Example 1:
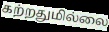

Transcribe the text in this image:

கற்றதுமில்லை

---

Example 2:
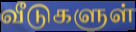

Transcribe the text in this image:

வீடுகளுள்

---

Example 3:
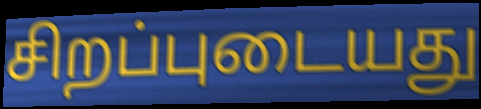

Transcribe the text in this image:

சிறப்புடையது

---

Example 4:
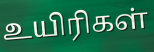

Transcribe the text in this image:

உயிரிகள்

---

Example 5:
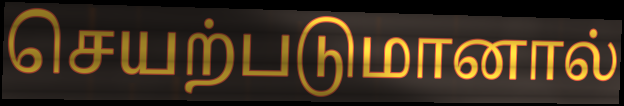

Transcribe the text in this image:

செயற்படுமானால்